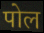
पोल